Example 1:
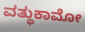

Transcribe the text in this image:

ವತ್ಥುಕಾಮೋ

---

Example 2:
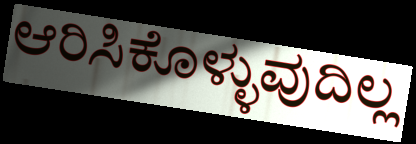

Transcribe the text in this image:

ಆರಿಸಿಕೊಳ್ಳುವುದಿಲ್ಲ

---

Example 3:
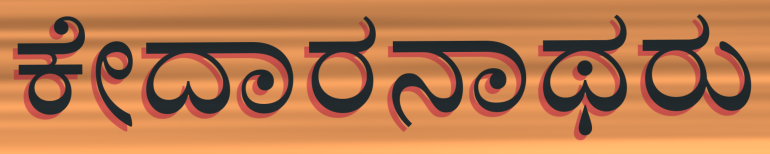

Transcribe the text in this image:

ಕೇದಾರನಾಥರು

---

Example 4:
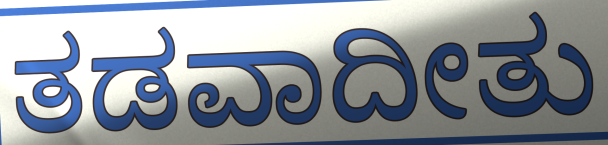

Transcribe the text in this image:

ತಡವಾದೀತು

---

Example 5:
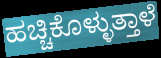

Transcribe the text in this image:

ಹಚ್ಚಿಕೊಳ್ಳುತ್ತಾಳೆ